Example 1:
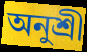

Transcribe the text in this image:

অনুশ্রী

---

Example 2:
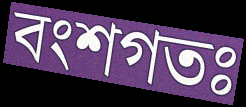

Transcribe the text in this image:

বংশগতঃ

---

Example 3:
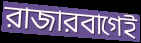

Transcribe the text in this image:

রাজারবাগেই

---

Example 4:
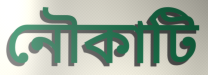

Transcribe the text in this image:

নৌকাটি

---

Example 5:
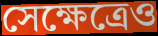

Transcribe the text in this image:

সেক্ষেত্রেও